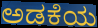
ಅಡಕೆಯ